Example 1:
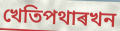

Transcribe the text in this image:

খেতিপথাৰখন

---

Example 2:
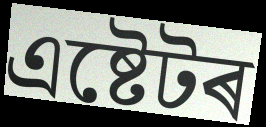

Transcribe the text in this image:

এষ্টেটৰ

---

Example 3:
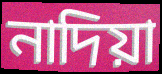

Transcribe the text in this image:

নাদিয়া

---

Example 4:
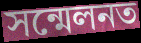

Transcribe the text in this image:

সন্মেলনত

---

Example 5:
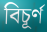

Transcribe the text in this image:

বিচূৰ্ণ